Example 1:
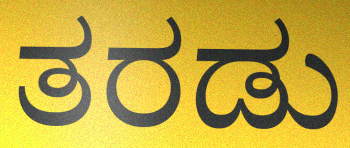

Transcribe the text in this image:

ತರಡು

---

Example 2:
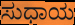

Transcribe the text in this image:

ಸುಧಾಯ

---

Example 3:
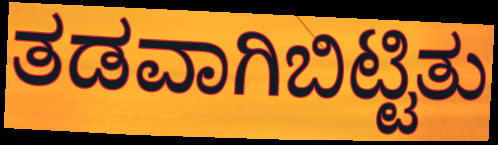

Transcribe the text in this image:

ತಡವಾಗಿಬಿಟ್ಟಿತು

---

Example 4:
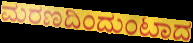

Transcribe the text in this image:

ಮರಣದಿಂದುಂಟಾದ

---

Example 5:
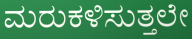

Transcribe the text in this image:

ಮರುಕಳಿಸುತ್ತಲೇ